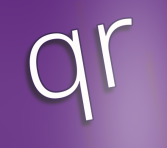
qr